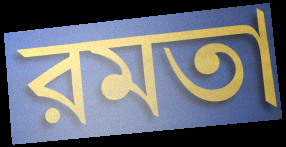
রমতা